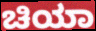
ಚಿಯಾ